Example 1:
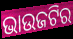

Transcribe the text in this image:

ଭାଉଜଟିର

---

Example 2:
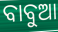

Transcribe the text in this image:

ବାବୁଆ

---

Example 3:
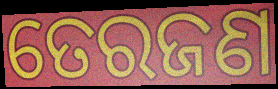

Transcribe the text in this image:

ତେରଜଣ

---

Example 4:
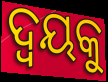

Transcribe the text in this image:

ଦ୍ଵୟକୁ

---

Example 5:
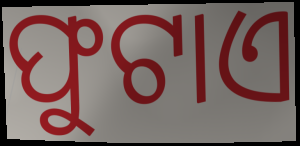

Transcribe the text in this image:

ଫୁଟାଏ